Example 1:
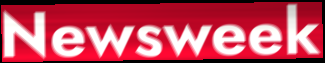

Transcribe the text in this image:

Newsweek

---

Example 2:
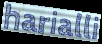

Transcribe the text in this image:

harialli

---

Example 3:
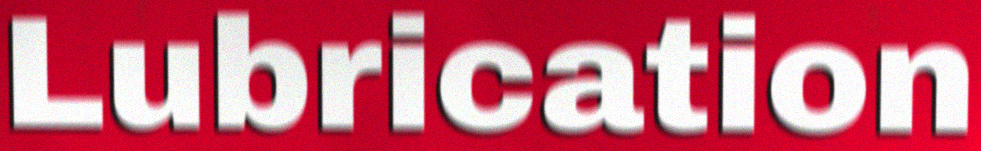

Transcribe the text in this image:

Lubrication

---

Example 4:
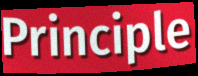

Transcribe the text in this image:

Principle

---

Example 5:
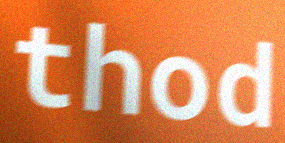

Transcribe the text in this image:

thod